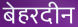
बेहरदीन